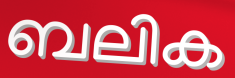
ബലിക